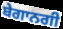
ਬੇਗਾਨਗੀ